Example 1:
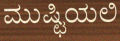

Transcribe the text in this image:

ಮುಷ್ಟಿಯಲಿ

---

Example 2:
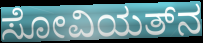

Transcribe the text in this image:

ಸೋವಿಯತ್‌ನ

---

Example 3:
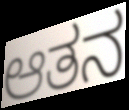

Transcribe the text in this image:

ಆತನ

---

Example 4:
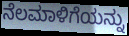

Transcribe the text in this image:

ನೆಲಮಾಳಿಗೆಯನ್ನು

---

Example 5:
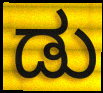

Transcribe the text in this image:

ಡು